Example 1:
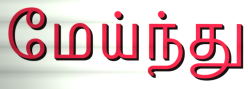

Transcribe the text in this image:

மேய்ந்து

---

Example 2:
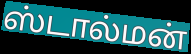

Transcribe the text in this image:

ஸ்டால்மன்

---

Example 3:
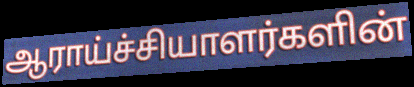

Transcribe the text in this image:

ஆராய்ச்சியாளர்களின்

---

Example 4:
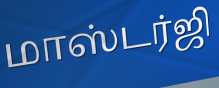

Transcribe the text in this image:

மாஸ்டர்ஜி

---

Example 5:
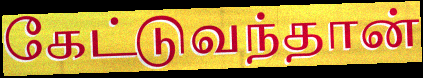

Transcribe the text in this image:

கேட்டுவந்தான்